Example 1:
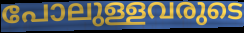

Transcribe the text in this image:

പോലുള്ളവരുടെ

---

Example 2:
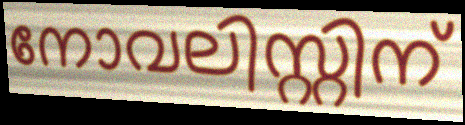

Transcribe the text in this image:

നോവലിസ്റ്റിന്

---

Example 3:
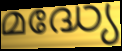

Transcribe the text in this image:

മദ്ധ്യേ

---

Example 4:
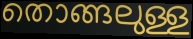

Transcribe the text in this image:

തൊങ്ങലുള്ള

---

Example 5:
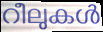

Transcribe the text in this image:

റീലുകൾ